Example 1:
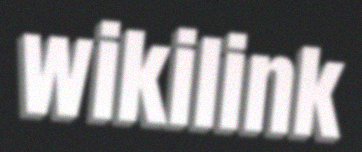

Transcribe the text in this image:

wikilink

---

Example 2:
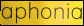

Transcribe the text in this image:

aphonia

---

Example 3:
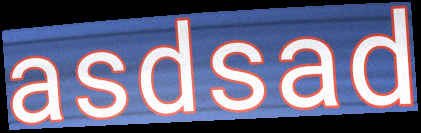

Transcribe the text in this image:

asdsad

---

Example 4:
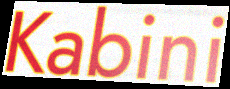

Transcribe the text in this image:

Kabini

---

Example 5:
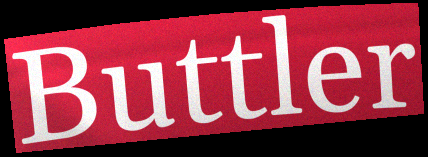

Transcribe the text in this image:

Buttler